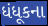
ધંધૂકના